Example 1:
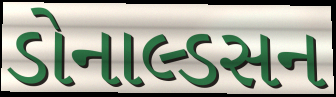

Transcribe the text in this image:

ડોનાલ્ડસન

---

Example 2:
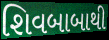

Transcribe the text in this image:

શિવબાબાથી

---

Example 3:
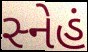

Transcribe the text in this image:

સ્નેહં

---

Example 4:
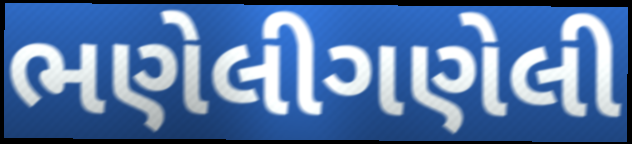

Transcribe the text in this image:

ભણેલીગણેલી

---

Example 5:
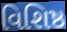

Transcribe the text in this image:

વિશિષ્ઠ